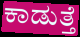
ಕಾಡುತ್ತೆ